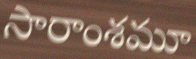
సారాంశమూ